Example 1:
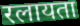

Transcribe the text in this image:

रलायता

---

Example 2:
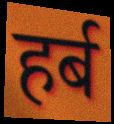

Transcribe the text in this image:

हर्ब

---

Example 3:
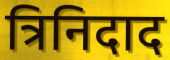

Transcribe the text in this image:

त्रिनिदाद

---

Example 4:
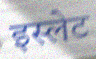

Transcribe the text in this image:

इस्लेट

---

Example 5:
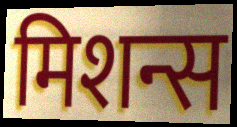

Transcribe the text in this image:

मिशन्स